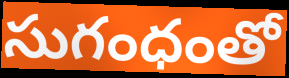
సుగంధంతో